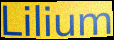
Lilium